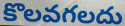
కొలవగలదు